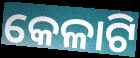
କେଳାଟି